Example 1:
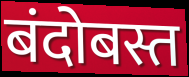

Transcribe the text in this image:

बंदोबस्त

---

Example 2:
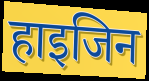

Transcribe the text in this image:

हाइजिन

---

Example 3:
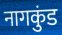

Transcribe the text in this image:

नागकुंड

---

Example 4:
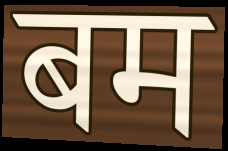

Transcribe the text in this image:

बम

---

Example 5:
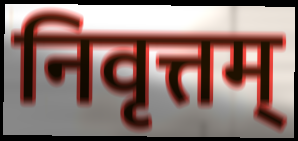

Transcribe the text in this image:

निवृत्तम्